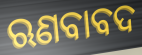
ଋଣବାବଦ